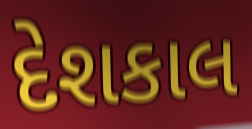
દેશકાલ